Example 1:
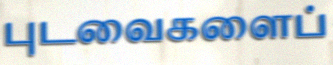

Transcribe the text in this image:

புடவைகளைப்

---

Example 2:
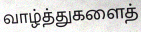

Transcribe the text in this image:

வாழ்த்துகளைத்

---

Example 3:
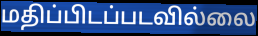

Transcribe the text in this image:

மதிப்பிடப்படவில்லை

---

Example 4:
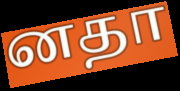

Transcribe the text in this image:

னதா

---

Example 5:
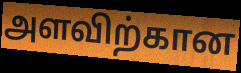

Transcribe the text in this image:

அளவிற்கான